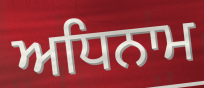
ਅਧਿਨਾਮ